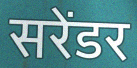
सरेंडर